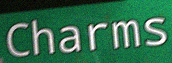
Charms